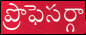
ప్రొఫెసర్గా